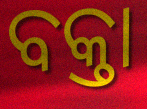
ବକ୍ତା